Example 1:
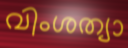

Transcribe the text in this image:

വിംശത്യാ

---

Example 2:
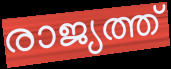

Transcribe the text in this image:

രാജ്യത്ത്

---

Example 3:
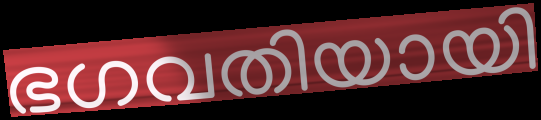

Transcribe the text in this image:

ഭഗവതിയായി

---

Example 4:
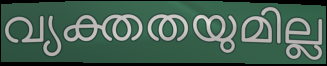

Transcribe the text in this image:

വ്യക്തതയുമില്ല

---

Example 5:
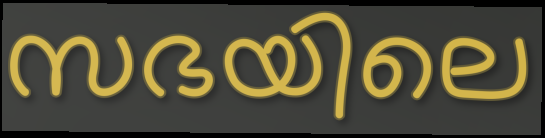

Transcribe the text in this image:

സഭയിലെ